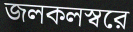
জলকলস্বরে